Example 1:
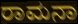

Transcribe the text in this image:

ರಾಮನಾ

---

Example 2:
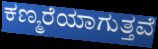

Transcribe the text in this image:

ಕಣ್ಮರೆಯಾಗುತ್ತವೆ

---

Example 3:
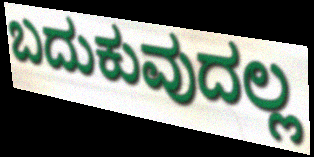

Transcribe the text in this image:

ಬದುಕುವುದಲ್ಲ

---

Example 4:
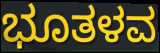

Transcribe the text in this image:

ಭೂತಳವ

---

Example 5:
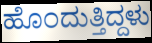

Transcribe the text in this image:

ಹೊಂದುತ್ತಿದ್ದಳು